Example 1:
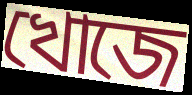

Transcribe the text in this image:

খোজে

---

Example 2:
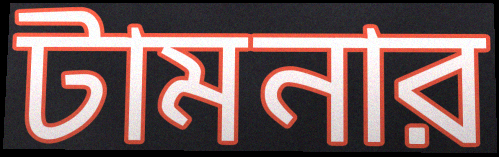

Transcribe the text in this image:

টামনার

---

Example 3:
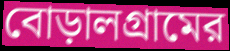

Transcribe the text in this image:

বোড়ালগ্রামের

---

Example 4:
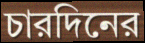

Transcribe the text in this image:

চারদিনের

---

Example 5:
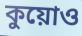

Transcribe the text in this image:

কুয়োও